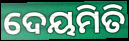
ଦେୟମିତି